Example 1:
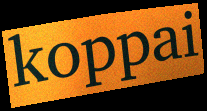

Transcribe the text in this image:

koppai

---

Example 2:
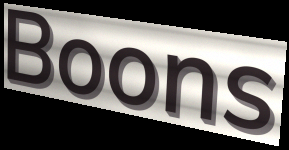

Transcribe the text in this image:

Boons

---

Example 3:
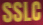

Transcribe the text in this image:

SSLC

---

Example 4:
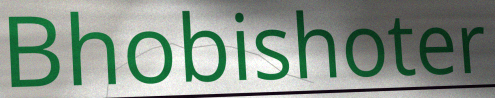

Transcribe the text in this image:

Bhobishoter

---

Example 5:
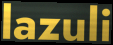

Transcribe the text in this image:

lazuli